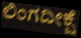
ಲಿಂಗದೀಕ್ಷೆ